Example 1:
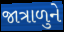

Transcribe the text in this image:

જાત્રાળુને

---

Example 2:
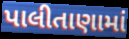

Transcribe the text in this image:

પાલીતાણામાં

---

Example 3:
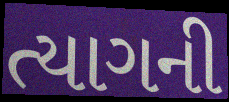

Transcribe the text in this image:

ત્‍યાગની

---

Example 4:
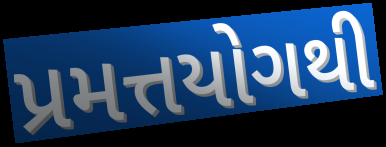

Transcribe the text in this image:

પ્રમત્તયોગથી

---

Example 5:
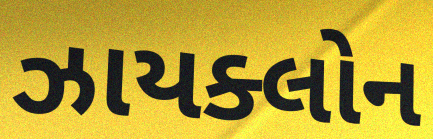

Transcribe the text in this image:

ઝાયક્લોન